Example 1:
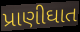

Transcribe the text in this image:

પ્રાણીઘાત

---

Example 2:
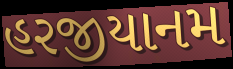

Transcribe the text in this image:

હરજીયાનમ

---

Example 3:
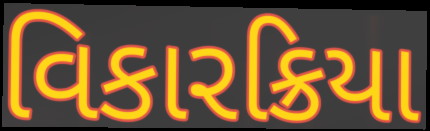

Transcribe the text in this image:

વિકારક્રિયા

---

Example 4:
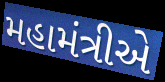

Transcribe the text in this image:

મહામંત્રીએ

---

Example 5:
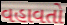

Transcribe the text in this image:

વહાવતો